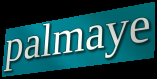
palmaye